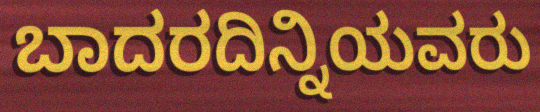
ಬಾದರದಿನ್ನಿಯವರು